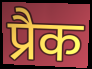
प्रैक